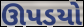
ઊપડયો